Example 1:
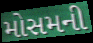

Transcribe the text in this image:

મોસમની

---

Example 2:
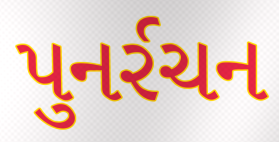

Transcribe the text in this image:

પુનર્રચન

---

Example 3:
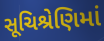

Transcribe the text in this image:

સૂચિશ્રેણિમાં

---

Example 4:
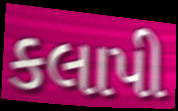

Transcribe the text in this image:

કલાપી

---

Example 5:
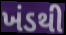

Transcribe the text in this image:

ખંડથી